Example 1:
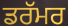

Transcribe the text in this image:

ਡਰੱਮਰ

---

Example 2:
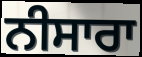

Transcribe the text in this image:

ਨੀਸਾਰਾ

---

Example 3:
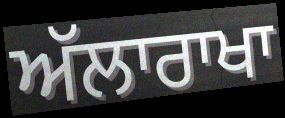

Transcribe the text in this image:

ਅੱਲਾਰਾਖਾ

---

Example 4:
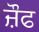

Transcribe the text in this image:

ਜ਼ੌਫ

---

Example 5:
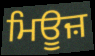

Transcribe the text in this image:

ਮਿਊਜ਼